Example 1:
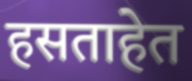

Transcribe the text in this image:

हसताहेत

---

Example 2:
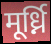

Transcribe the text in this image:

मूर्ध्नि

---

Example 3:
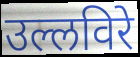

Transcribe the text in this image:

उल्लविरे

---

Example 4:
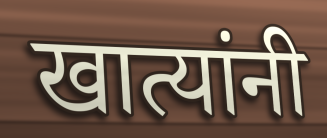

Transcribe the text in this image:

खात्यांनी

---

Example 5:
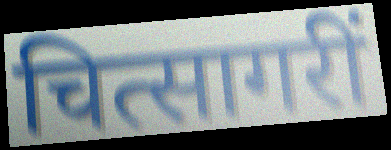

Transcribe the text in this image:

चित्सागरीं